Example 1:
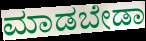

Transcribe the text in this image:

ಮಾಡಬೇಡಾ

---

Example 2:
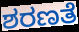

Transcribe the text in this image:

ಶರಣತೆ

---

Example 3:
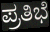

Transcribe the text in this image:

ಪ್ರತಿಭೆ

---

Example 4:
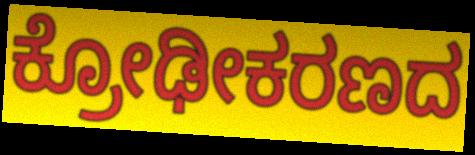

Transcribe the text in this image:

ಕ್ರೋಢೀಕರಣದ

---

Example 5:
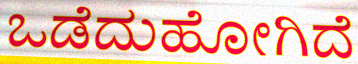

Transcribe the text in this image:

ಒಡೆದುಹೋಗಿದೆ